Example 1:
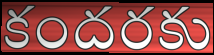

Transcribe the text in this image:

కందరకు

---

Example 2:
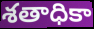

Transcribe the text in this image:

శతాధికా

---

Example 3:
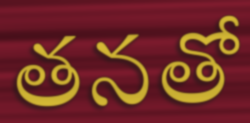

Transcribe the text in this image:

తనతో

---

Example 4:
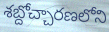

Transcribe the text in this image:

శబ్దోచ్చారణలోని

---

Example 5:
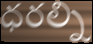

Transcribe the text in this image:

ధరల్ని